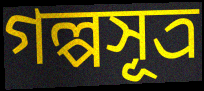
গল্পসূত্র